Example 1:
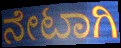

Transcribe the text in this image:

ನೇಟಾಗಿ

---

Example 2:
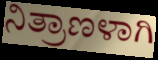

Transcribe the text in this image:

ನಿತ್ರಾಣಳಾಗಿ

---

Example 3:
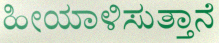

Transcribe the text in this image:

ಹೀಯಾಳಿಸುತ್ತಾನೆ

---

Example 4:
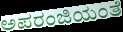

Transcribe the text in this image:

ಅಪರಂಜಿಯಂತೆ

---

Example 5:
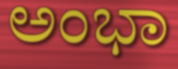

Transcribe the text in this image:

ಅಂಭಾ